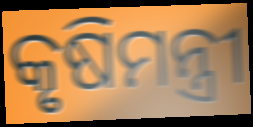
କୃଷିମନ୍ତ୍ରୀ